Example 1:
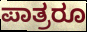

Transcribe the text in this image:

ಪಾತ್ರರೂ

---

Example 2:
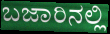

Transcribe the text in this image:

ಬಜಾರಿನಲ್ಲಿ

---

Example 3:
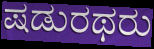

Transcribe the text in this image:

ಷಡುರಥರು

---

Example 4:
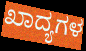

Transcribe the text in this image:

ಖಾದ್ಯಗಳ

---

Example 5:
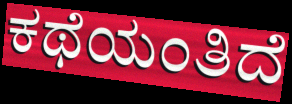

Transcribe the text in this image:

ಕಥೆಯಂತಿದೆ